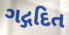
ગદ્ગદિત